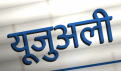
यूजुअली